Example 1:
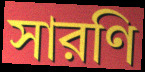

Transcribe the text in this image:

সারণি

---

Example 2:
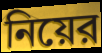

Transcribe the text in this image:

নিয়ের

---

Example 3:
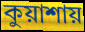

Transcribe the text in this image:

কুয়াশায়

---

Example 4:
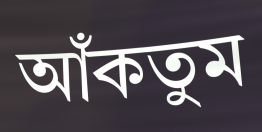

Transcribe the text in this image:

আঁকতুম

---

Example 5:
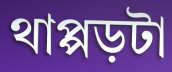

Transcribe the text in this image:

থাপ্পড়টা